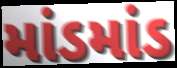
માંડમાંડ